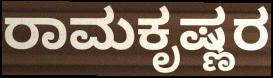
ರಾಮಕೃಷ್ಣರ